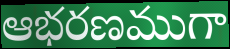
ఆభరణముగా